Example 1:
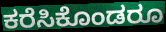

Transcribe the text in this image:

ಕರೆಸಿಕೊಂಡರೂ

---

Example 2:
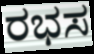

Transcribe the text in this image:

ರಭಸ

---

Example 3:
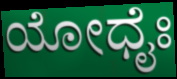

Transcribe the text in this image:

ಯೋಧೈಃ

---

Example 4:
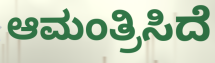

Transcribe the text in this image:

ಆಮಂತ್ರಿಸಿದೆ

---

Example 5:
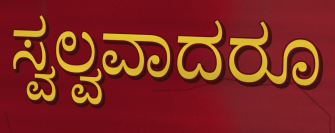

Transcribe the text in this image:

ಸ್ವಲ್ವವಾದರೂ